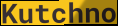
Kutchno